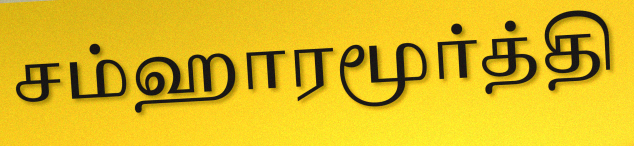
சம்ஹாரமூர்த்தி